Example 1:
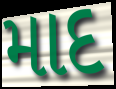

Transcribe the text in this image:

માદ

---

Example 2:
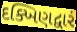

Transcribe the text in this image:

દક્ખિણદ્વારં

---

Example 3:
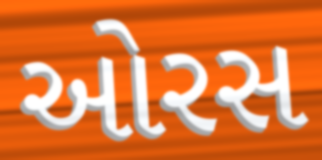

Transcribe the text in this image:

ઓરસ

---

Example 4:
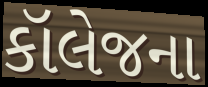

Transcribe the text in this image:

કૉલેજના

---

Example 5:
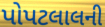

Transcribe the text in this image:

પોપટલાલની